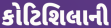
કોટિશિલાની